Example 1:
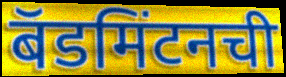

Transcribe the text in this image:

बॅडमिंटनची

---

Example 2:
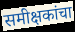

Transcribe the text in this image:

समीक्षकांचा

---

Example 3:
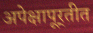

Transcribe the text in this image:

अपेक्षापूर्तीत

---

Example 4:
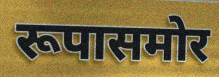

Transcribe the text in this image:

रूपासमोर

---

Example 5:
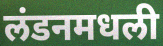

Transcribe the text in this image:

लंडनमधली